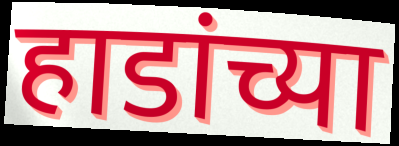
हाडांच्या